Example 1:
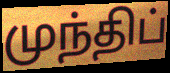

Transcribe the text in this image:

முந்திப்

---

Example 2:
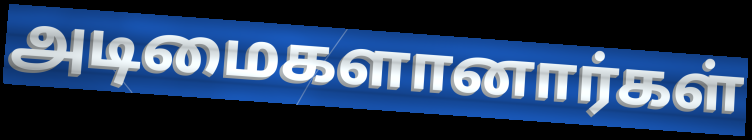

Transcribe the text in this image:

அடிமைகளானார்கள்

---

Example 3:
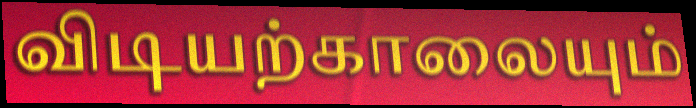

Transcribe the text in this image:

விடியற்காலையும்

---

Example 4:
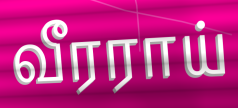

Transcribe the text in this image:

வீரராய்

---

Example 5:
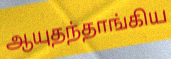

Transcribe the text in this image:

ஆயுதந்தாங்கிய